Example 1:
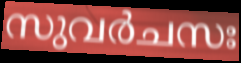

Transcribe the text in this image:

സുവർചസഃ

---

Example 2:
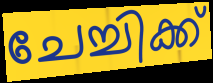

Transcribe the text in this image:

ചേച്ചിക്ക്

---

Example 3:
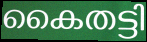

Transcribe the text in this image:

കൈതട്ടി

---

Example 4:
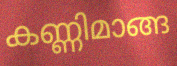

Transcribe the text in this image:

കണ്ണിമാങ്ങ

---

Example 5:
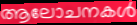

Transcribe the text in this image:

ആലോചനകൾ